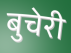
बुचेरी